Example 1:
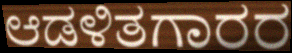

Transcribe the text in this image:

ಆಡಳಿತಗಾರರ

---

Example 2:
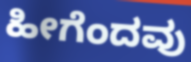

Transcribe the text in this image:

ಹೀಗೆಂದವು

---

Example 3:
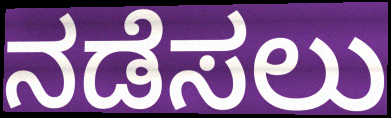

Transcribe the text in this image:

ನಡೆಸಲು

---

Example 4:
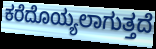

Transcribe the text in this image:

ಕರೆದೊಯ್ಯಲಾಗುತ್ತದೆ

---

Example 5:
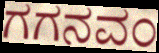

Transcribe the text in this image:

ಗಗನವಂ